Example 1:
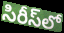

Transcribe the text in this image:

సిరీస్‌లో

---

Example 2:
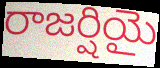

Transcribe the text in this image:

రాజర్షియై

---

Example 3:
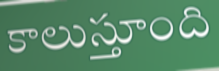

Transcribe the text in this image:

కాలుస్తూంది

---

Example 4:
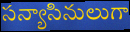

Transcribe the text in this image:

సన్యాసినులుగా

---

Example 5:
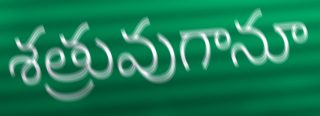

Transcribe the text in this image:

శత్రువుగానూ